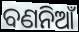
ବଣନିଆଁ